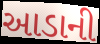
આડાની